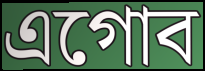
এগোব